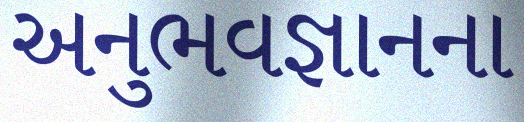
અનુભવજ્ઞાનના